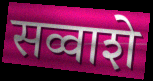
सव्वाशे